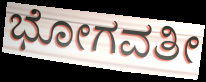
ಭೋಗವತೀ